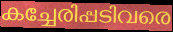
കച്ചേരിപ്പടിവരെ